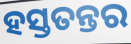
ହସ୍ତତନ୍ତର